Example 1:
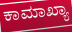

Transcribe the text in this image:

ಕಾಮಾಖ್ಯಾ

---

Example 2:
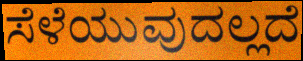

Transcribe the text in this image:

ಸೆಳೆಯುವುದಲ್ಲದೆ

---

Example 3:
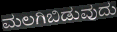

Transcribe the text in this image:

ಮಲಗಿಬಿಡುವುದು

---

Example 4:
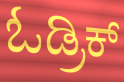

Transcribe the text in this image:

ಓಡ್ರಿಕ್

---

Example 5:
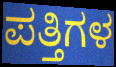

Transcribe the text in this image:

ಪತ್ತಿಗಳ